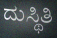
ದುಸ್ಥಿತಿ